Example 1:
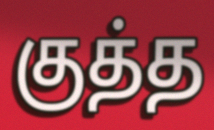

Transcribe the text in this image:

குத்த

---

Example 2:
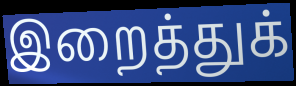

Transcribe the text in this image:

இறைத்துக்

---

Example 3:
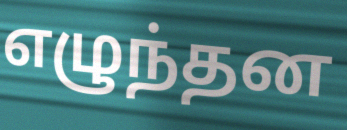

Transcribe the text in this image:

எழுந்தன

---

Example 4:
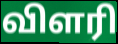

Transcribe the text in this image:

விளரி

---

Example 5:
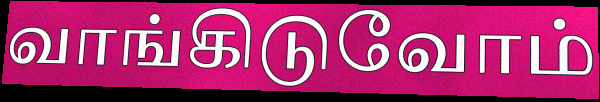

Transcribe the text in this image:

வாங்கிடுவோம்